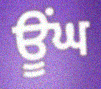
ਊਂਘ